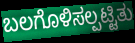
ಬಲಗೊಳಿಸಲ್ಪಟ್ಟಿತು